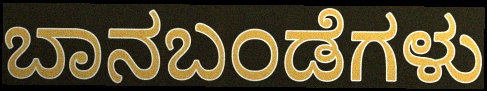
ಬಾನಬಂಡೆಗಳು